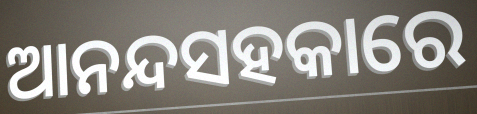
ଆନନ୍ଦସହକାରେ